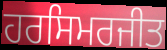
ਹਰਸਿਮਰਜੀਤ